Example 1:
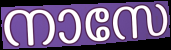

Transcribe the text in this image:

നാസേ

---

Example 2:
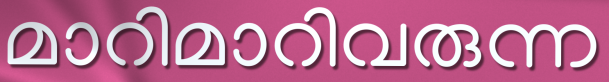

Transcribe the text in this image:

മാറിമാറിവരുന്ന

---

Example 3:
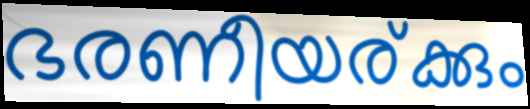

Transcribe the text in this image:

ഭരണീയര്ക്കും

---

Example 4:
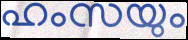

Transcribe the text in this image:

ഹംസയും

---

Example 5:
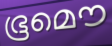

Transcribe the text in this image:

ഭൂമൌ